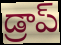
డ్రాప్